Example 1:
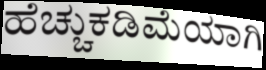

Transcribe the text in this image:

ಹೆಚ್ಚುಕಡಿಮೆಯಾಗಿ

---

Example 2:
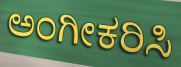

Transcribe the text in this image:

ಅಂಗೀಕರಿಸಿ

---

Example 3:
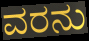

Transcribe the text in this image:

ವರನು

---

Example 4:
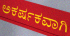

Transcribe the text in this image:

ಅಕರ್ಷಕವಾಗಿ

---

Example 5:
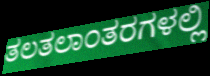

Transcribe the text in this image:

ತಲತಲಾಂತರಗಳಲ್ಲಿ